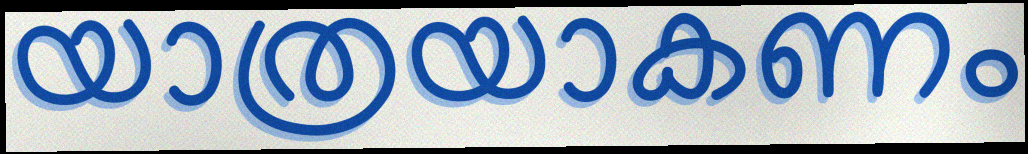
യാത്രയാകണം